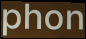
phon